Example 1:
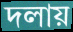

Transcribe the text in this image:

দলায়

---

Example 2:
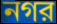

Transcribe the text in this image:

নগর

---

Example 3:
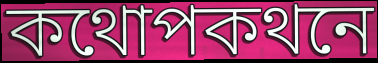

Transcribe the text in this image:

কথোপকথনে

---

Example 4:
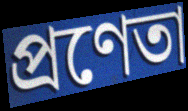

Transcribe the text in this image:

প্রণেতা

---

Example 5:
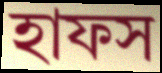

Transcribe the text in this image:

হাফস